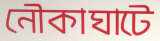
নৌকাঘাটে